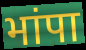
भांपा